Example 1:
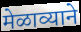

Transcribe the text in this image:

मेळाव्याने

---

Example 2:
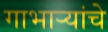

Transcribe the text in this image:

गाभाऱ्यांचे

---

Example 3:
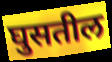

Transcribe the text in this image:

घुसतील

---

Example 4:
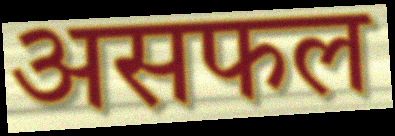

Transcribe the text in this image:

असफल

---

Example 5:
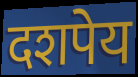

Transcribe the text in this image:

दशपेय